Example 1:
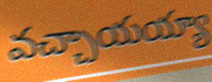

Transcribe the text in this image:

వచ్చాయయ్యా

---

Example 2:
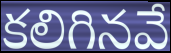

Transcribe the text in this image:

కలిగినవే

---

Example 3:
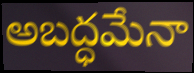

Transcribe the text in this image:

అబద్ధమేనా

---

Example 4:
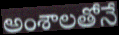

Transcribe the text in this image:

అంశాలతోనే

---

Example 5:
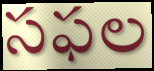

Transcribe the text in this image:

సఫల